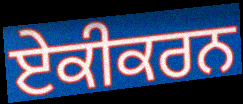
ਏਕੀਕਰਨ